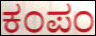
ಕಂಪಂ